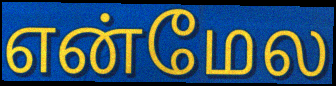
என்மேல